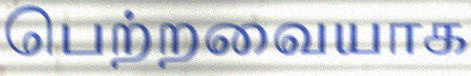
பெற்றவையாக